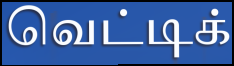
வெட்டிக்